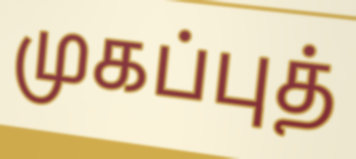
முகப்புத்